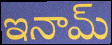
ఇనామ్